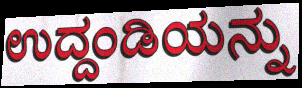
ಉದ್ದಂಡಿಯನ್ನು